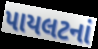
પાયલટનાં